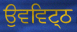
ਉਵਵਿਟ੍ਠ